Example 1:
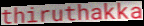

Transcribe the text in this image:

thiruthakka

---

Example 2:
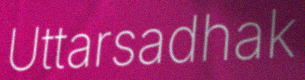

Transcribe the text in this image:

Uttarsadhak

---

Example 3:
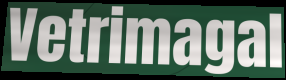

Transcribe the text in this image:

Vetrimagal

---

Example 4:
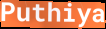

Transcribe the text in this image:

Puthiya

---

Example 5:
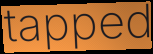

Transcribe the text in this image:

tapped